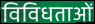
विविधताओं